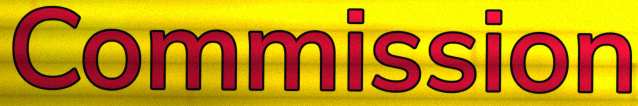
Commission